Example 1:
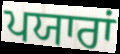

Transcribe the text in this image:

ਪਯਾਰਾਂ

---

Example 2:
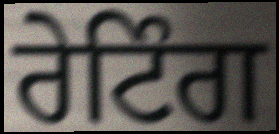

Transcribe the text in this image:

ਰੇਟਿੰਗ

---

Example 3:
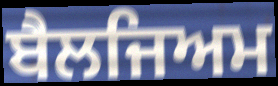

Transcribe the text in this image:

ਬੈਲਜਿਅਮ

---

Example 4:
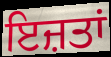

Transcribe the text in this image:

ਇਜ਼ਤਾਂ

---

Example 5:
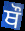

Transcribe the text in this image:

ਥੌ